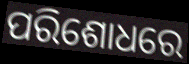
ପରିଶୋଧରେ